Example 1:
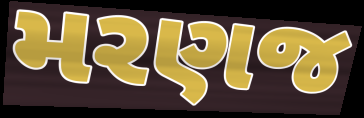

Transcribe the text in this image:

મરણજ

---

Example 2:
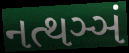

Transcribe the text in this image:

નત્થઞ્ઞં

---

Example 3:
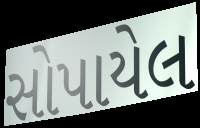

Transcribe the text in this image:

સોપાયેલ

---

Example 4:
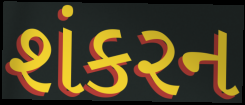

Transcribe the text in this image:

શંકરન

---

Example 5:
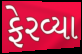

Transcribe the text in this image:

ફેરવ્યા